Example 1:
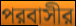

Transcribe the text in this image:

পরবাসীর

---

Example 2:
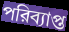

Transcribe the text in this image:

পরিব্যাপ্ত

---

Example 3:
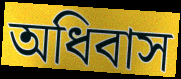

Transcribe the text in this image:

অধিবাস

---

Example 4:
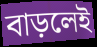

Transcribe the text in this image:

বাড়লেই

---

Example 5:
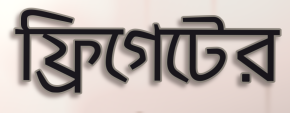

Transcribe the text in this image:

ফ্রিগেটের